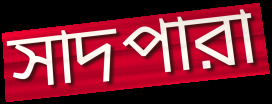
সাদপারা